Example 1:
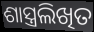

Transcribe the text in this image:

ଶାସ୍ତ୍ରଲିଖିତ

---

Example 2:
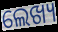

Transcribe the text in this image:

ଲେଖ୍ୟ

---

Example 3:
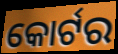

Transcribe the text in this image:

କୋର୍ଟର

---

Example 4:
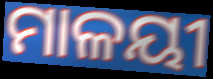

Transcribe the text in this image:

ମାଳୟୀ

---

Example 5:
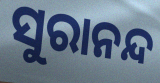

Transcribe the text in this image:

ସୁରାନନ୍ଦ